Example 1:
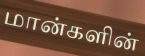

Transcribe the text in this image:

மான்களின்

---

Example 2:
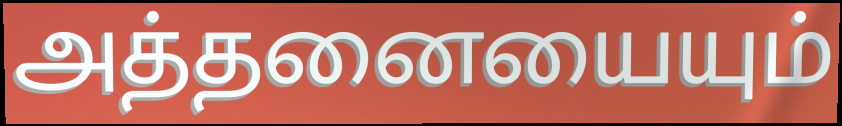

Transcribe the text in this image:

அத்தனையையும்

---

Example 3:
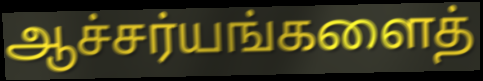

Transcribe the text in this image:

ஆச்சர்யங்களைத்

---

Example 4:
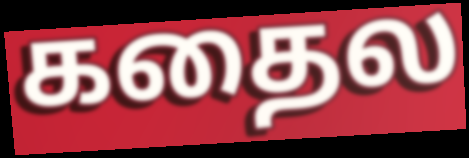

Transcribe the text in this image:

கதைல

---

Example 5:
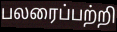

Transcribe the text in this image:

பலரைப்பற்றி